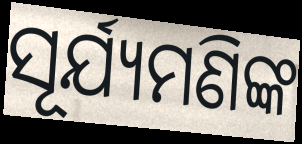
ସୂର୍ଯ୍ୟମଣିଙ୍କ